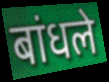
बांधले